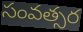
సంవత్సర